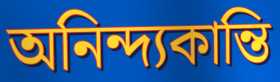
অনিন্দ্যকান্তি